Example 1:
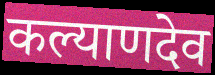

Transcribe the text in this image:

कल्याणदेव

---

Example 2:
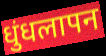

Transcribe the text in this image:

धुंधलापन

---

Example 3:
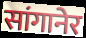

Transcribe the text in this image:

सांगानेर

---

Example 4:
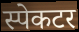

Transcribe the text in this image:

स्पेकटर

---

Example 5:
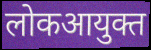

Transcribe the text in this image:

लोकआयुक्त